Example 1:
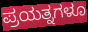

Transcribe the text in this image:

ಪ್ರಯತ್ನಗಳೂ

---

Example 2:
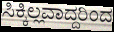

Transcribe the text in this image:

ಸಿಕ್ಕಿಲ್ಲವಾದ್ದರಿಂದ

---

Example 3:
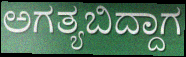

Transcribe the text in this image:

ಅಗತ್ಯಬಿದ್ದಾಗ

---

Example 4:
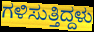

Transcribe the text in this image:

ಗಳಿಸುತ್ತಿದ್ದಳು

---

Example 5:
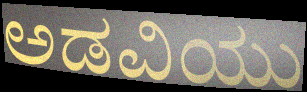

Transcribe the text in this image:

ಅಡವಿಯು